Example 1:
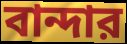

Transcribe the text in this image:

বান্দার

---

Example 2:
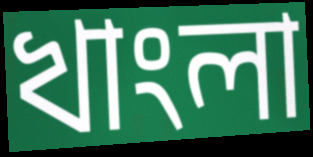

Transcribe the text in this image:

খাংলা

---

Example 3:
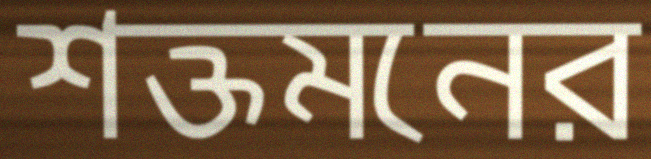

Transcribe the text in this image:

শক্তমনের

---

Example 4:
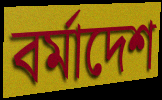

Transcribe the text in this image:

বর্মাদেশ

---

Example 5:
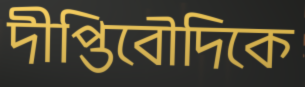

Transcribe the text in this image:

দীপ্তিবৌদিকে